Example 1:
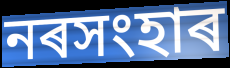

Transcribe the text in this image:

নৰসংহাৰ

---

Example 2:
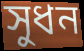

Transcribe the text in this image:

সুধন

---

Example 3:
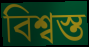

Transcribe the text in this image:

বিশ্বস্ত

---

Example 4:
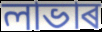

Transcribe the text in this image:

লাভাৰ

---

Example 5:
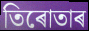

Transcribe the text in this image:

তিৰোতাৰ